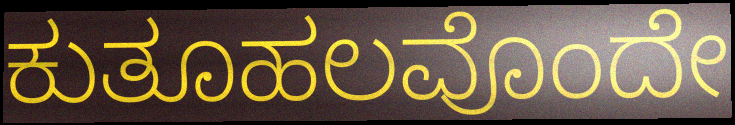
ಕುತೂಹಲವೊಂದೇ